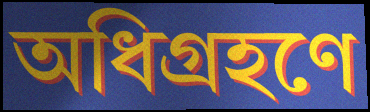
অধিগ্রহণে